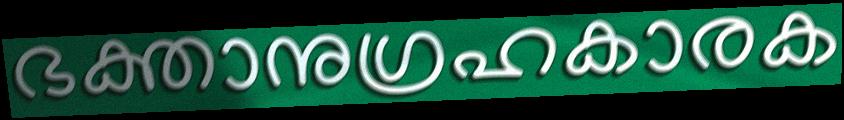
ഭക്താനുഗ്രഹകാരക